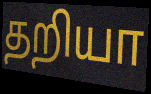
தறியா